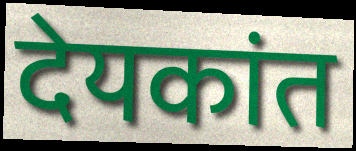
देयकांत